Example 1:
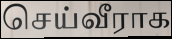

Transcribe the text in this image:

செய்வீராக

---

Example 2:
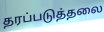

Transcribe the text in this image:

தரப்படுத்தலை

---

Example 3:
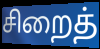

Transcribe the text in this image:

சிறைத்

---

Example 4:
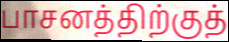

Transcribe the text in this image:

பாசனத்திற்குத்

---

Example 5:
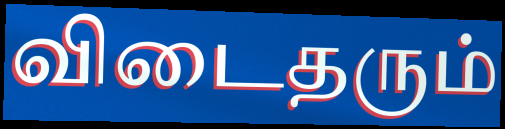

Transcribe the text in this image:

விடைதரும்